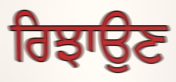
ਰਿਝਾਉਣ